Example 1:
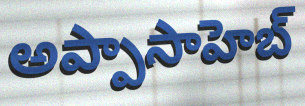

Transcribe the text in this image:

అప్పాసాహెబ్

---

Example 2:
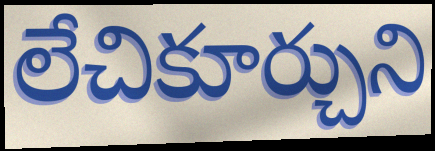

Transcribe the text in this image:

లేచికూర్చుని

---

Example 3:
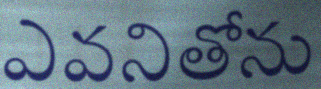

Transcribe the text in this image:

ఎవనితోను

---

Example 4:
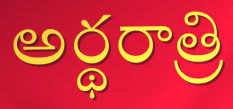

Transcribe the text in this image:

అర్థరాత్రి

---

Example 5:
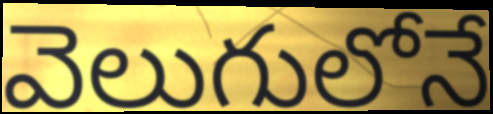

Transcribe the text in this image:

వెలుగులోనే